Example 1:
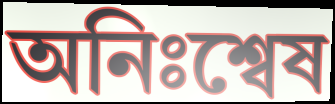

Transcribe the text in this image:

অনিঃশ্বেষ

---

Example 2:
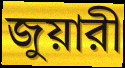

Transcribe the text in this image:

জুয়ারী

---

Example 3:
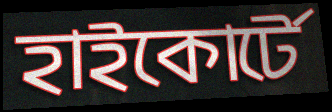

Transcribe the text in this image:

হাইকোর্টে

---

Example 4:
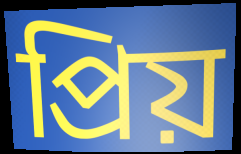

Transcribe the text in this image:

প্রিয়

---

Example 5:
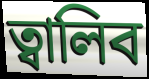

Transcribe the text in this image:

ত্বালিব